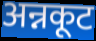
अन्नकूट